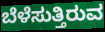
ಬೆಳೆಸುತ್ತಿರುವ